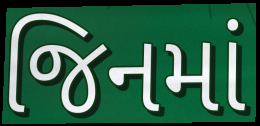
જિનમાં